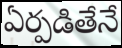
ఏర్పడితేనే